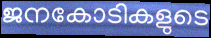
ജനകോടികളുടെ